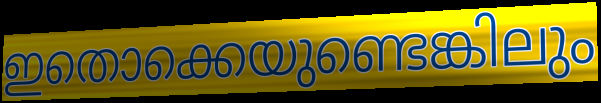
ഇതൊക്കെയുണ്ടെങ്കിലും